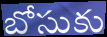
బోసుకు